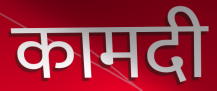
कामदी